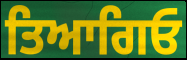
ਤਿਆਗਿਓ